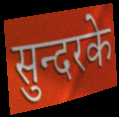
सुन्दरके